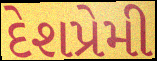
દેશપ્રેમી